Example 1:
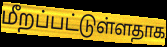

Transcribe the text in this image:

மீறப்பட்டுள்ளதாக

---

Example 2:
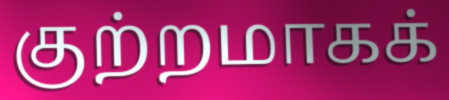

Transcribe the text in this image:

குற்றமாகக்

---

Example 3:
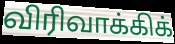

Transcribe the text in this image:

விரிவாக்கிக்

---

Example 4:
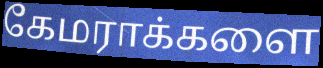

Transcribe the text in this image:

கேமராக்களை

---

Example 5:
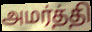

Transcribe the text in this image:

அமர்த்தி